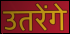
उतरेंगे